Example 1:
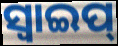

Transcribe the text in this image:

ସ୍ୱାଇପ୍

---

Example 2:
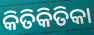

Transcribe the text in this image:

କିତିକିତିକା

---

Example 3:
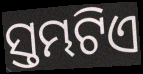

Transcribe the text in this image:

ସ୍ତମ୍ଭଟିଏ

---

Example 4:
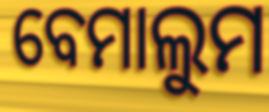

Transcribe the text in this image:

ବେମାଲୁମ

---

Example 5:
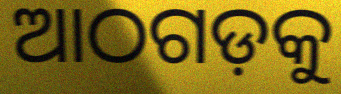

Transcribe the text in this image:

ଆଠଗଡ଼କୁ